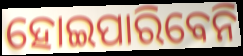
ହୋଇପାରିବେନି